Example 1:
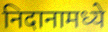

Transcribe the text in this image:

निदानामध्ये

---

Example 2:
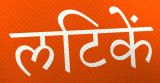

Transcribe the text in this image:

लटिकें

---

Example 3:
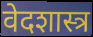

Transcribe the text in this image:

वेदशास्त्र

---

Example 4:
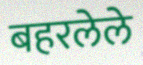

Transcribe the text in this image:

बहरलेले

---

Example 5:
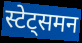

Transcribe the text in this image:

स्टेट्समन